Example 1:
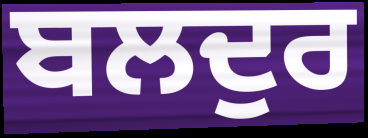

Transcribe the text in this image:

ਬਲਦੁਰ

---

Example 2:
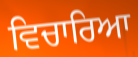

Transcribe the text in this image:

ਵਿਚਾਰਿਆ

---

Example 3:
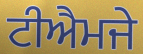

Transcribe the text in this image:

ਟੀਐਮਜੇ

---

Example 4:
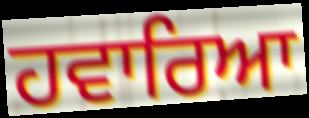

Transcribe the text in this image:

ਹਵਾਰਿਆ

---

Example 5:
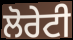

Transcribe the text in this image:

ਲੋਰੇਟੀ